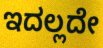
ಇದಲ್ಲದೇ